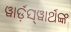
ୱାର୍ଡ଼ସ୍‌ୱାର୍ଥଙ୍କ